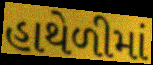
હાથેળીમાં